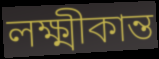
লক্ষ্মীকান্ত